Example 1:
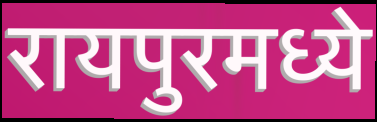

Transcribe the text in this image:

रायपुरमध्ये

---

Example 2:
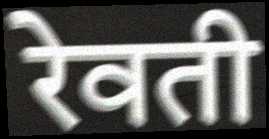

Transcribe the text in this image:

रेवती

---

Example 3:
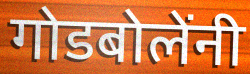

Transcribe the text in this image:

गोडबोलेंनी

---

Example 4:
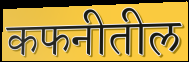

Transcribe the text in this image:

कफनीतील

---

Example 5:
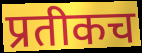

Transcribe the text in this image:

प्रतीकच